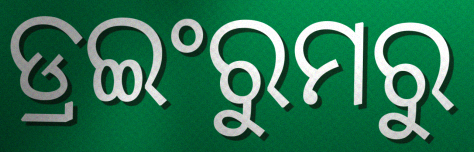
ଡ୍ରଇଂରୁମରୁ